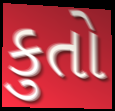
કુતો